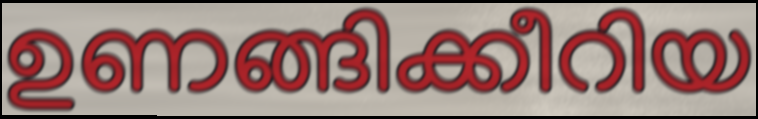
ഉണങ്ങിക്കീറിയ